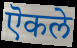
ऎकले